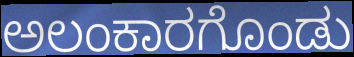
ಅಲಂಕಾರಗೊಂಡು